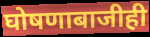
घोषणाबाजीही